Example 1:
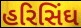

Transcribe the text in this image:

હરિસિંઘ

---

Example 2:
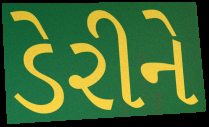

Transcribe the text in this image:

ડેરીને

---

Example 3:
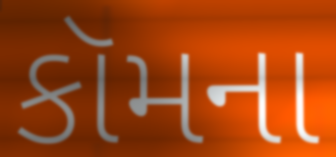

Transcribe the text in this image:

કૉમના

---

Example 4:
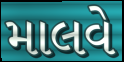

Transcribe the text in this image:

માલવે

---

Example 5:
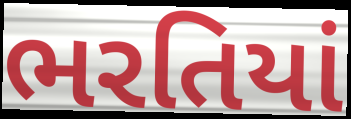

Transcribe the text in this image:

ભરતિયાં